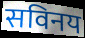
सविनय